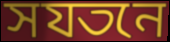
সযতনে